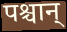
पश्चान्